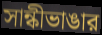
সান্কীভাঙার